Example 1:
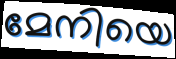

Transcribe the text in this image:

മേനിയെ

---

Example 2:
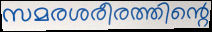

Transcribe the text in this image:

സമരശരീരത്തിന്റെ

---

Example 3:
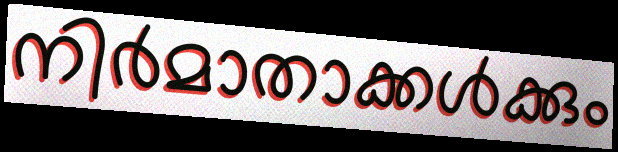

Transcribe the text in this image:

നിർമാതാക്കൾക്കും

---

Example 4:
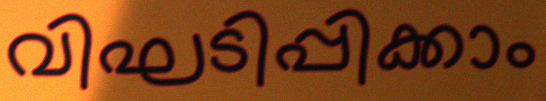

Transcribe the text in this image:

വിഘടിപ്പിക്കാം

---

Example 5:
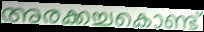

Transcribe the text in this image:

അരക്കച്ചകൊണ്ട്